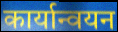
कार्यान्‍वयन